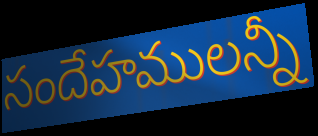
సందేహములన్నీ